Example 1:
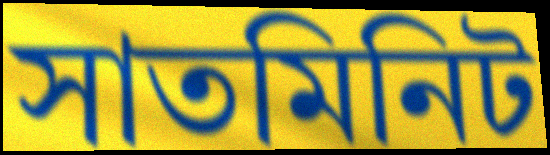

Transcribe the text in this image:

সাতমিনিট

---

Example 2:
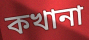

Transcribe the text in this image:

কখানা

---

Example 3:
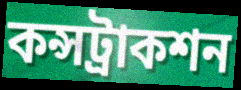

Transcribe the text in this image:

কন্সট্রাকশন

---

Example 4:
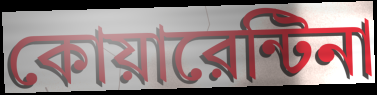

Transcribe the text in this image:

কোয়ারেন্টিনা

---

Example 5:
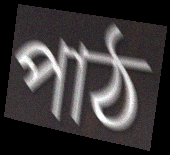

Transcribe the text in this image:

পাঠ